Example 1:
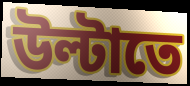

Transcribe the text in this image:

উল্টাতে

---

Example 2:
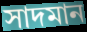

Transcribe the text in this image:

সাদমান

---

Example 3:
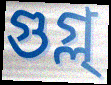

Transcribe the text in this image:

গুগ্ল্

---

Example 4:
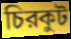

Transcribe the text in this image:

চিরকুট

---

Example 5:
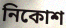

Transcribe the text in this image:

নিকোশ